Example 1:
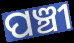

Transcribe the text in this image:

ପଞ୍ଚୀ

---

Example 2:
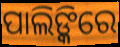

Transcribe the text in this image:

ପାଲିଙ୍କିରେ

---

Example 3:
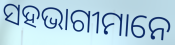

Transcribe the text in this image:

ସହଭାଗୀମାନେ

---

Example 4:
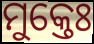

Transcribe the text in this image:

ମୁକ୍ତେଃ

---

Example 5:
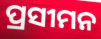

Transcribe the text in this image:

ପ୍ରସୀମନ